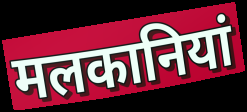
मलकानियां